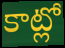
కాట్లో